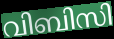
വിബിസി